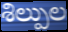
శిల్పుల